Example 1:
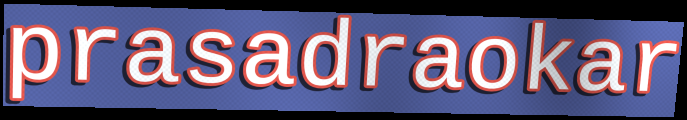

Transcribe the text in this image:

prasadraokar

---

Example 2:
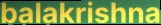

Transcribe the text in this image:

balakrishna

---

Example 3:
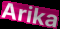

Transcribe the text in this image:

Arika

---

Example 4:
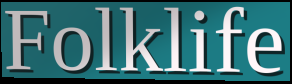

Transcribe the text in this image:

Folklife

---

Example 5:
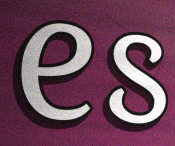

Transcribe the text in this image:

es